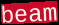
beam